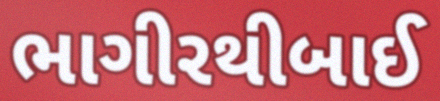
ભાગીરથીબાઈ